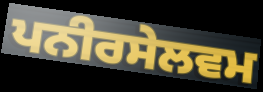
ਪਨੀਰਸੇਲਵਮ